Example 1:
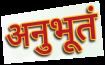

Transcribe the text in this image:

अनुभूतं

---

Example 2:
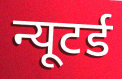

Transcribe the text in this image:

न्यूटर्ड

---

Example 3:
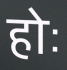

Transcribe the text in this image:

होः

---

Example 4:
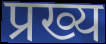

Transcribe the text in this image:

प्रख्य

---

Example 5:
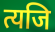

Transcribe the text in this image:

त्यजि